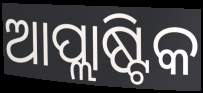
ଆପ୍ଲାଷ୍ଟିକ